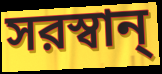
সরস্বান্